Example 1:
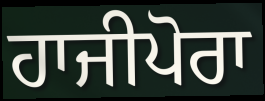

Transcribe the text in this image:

ਹਾਜੀਪੋਰਾ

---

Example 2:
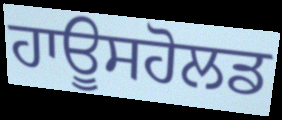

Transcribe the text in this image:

ਹਾਊਸਹੋਲਡ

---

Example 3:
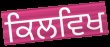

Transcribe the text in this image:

ਕਿਲਵਿਖ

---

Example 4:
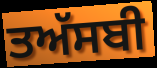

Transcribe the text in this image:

ਤਅੱਸਬੀ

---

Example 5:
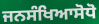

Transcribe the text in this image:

ਜਨਸੰਖਿਆਸੋਧੋ